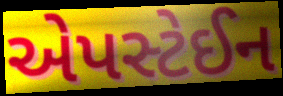
એપસ્ટેઈન